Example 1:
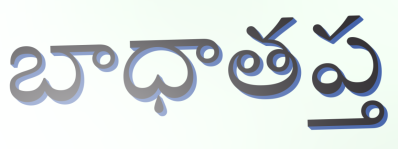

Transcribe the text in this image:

బాధాతప్త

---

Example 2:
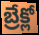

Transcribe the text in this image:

బ్రేక్లో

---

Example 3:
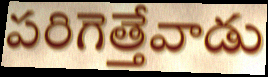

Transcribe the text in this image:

పరిగెత్తేవాడు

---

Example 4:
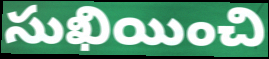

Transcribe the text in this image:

సుఖియించి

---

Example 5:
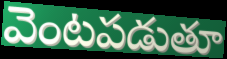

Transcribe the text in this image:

వెంటపడుతూ